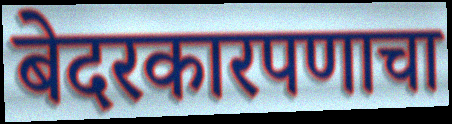
बेदरकारपणाचा